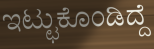
ಇಟ್ಟುಕೊಂಡಿದ್ದೆ